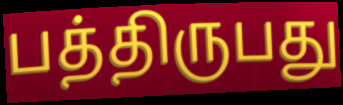
பத்திருபது